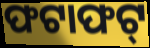
ଫଟାଫଟ୍